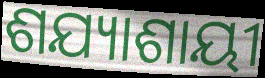
ଶଯ୍ୟାଶାୟୀ